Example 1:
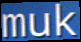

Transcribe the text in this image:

muk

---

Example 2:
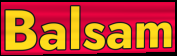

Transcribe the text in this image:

Balsam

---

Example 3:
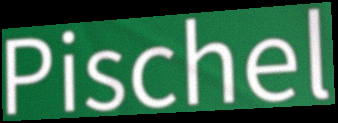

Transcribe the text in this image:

Pischel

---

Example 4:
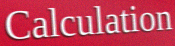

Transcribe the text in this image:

Calculation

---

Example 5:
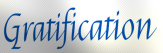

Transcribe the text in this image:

Gratification